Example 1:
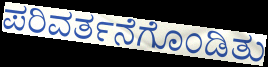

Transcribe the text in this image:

ಪರಿವರ್ತನೆಗೊಂಡಿತು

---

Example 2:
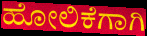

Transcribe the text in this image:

ಹೋಲಿಕೆಗಾಗಿ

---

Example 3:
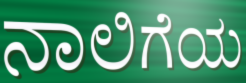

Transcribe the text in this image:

ನಾಲಿಗೆಯ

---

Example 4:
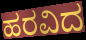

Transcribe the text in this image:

ಹರವಿದ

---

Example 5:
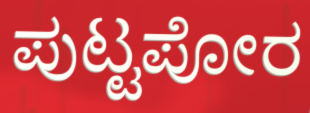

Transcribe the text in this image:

ಪುಟ್ಟಪೋರ